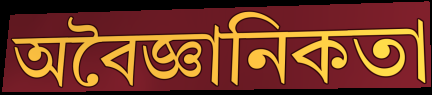
অবৈজ্ঞানিকতা